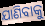
ଯାଣିବାକୁ